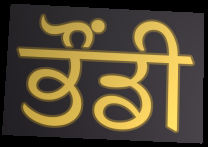
ਭੌਂਡੀ